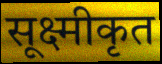
सूक्ष्मीकृत